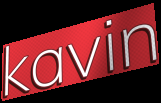
kavin